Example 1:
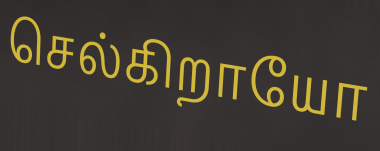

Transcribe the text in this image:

செல்கிறாயோ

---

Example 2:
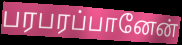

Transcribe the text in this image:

பரபரப்பானேன்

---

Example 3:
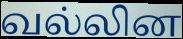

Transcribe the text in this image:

வல்லின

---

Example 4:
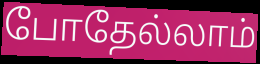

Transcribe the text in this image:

போதேல்லாம்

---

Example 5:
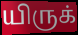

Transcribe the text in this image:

யிருக்